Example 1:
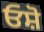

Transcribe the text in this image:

ਓਸ਼ੋ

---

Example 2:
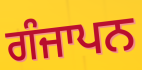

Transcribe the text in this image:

ਗੰਜਾਪਨ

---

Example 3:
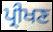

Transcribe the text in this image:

ਪ੍ਰੀਖਣ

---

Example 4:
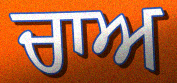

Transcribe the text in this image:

ਚਾਅ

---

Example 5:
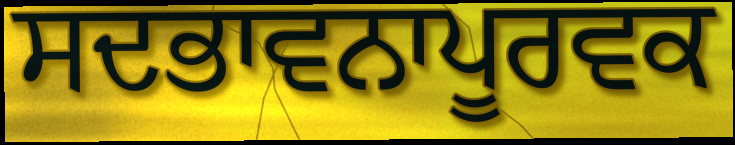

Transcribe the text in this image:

ਸਦਭਾਵਨਾਪੂਰਵਕ